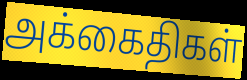
அக்கைதிகள்